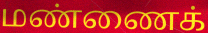
மண்ணைக்